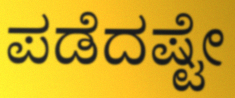
ಪಡೆದಷ್ಟೇ